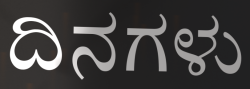
ದಿನಗಳು